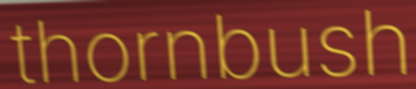
thornbush